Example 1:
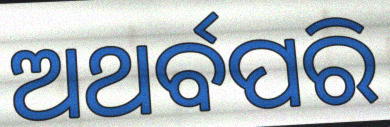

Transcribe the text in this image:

ଅଥର୍ବପରି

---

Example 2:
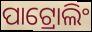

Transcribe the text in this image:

ପାଟ୍ରୋଲିଂ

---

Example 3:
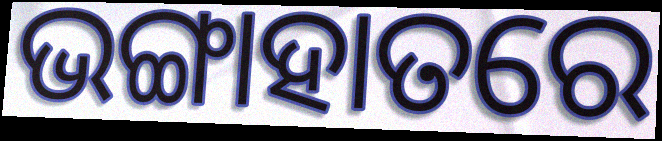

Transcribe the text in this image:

ଭଙ୍ଗାହାତରେ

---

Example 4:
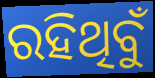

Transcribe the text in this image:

ରହିଥିବୁଁ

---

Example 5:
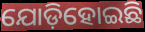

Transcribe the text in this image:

ଯୋଡ଼ିହୋଇଛି